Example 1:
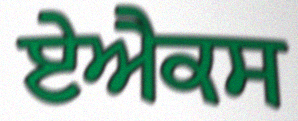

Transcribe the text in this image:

ਏਐਕਸ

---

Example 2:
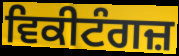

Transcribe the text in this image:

ਵਿਕੀਟੰਗਜ਼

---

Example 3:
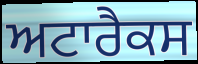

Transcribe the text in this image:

ਅਟਾਰੈਕਸ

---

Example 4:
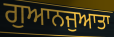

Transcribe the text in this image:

ਗੁਆਨਜੁਆਤਾ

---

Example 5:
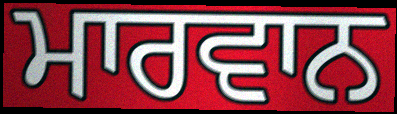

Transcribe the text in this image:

ਮਾਰਵਾਨ